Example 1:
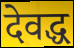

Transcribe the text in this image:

देवद्ध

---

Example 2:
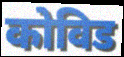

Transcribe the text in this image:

कोविड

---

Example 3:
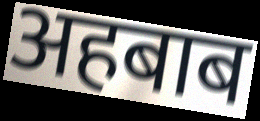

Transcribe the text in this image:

अहबाब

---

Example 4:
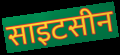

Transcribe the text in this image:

साइटसीन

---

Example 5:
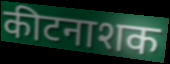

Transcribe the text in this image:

कीटनाशक